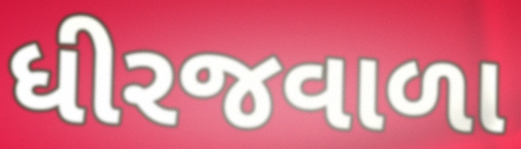
ધીરજવાળા